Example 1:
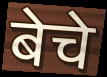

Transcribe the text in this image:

बेचे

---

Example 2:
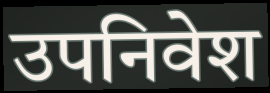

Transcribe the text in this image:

उपनिवेश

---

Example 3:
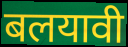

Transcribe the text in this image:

बलयावी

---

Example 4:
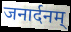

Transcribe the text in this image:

जनार्दनम्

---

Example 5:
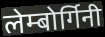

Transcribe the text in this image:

लेम्बोर्गिनी